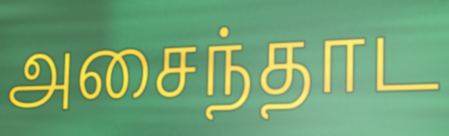
அசைந்தாட